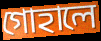
গোহালে